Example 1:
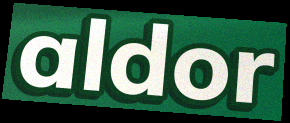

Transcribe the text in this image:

aldor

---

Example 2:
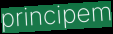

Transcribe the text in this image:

principem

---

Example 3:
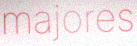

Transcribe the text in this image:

majores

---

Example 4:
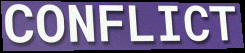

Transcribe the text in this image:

CONFLICT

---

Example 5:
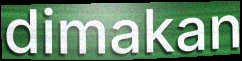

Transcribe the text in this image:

dimakan